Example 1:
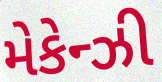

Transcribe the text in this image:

મેકેન્ઝી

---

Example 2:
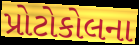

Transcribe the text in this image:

પ્રોટોકોલના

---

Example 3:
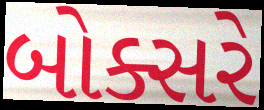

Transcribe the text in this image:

બોક્સરે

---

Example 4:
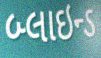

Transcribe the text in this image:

બ્લાઇન્ડ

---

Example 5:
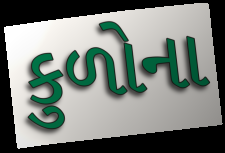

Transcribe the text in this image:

કુળોના